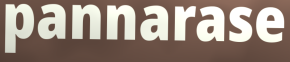
pannarase